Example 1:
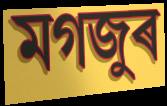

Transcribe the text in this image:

মগজুৰ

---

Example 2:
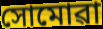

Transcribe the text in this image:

সোমোৱা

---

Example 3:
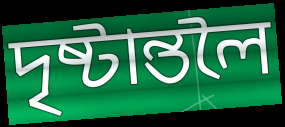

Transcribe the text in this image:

দৃষ্টান্তলৈ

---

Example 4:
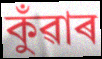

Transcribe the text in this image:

কুঁৱাৰ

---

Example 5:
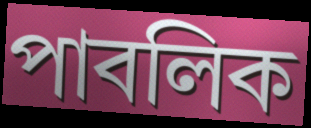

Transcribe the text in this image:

পাবলিক